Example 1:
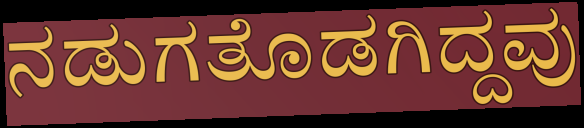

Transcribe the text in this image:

ನಡುಗತೊಡಗಿದ್ದವು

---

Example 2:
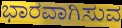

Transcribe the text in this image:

ಭಾರವಾಗಿಸುವ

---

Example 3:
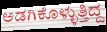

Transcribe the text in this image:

ಅಡಗಿಕೊಳ್ಳುತ್ತಿದ್ದ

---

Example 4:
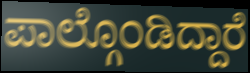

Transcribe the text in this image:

ಪಾಲ್ಗೊಂಡಿದ್ದಾರೆ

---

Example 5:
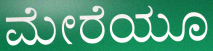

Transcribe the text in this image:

ಮೇರೆಯೂ